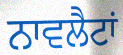
ਨਾਵਲੈਟਾਂ